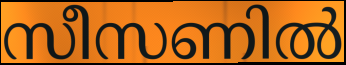
സീസണിൽ